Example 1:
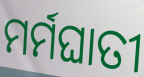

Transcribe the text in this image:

ମର୍ମଘାତୀ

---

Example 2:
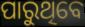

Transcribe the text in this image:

ପାରୁଥିବେ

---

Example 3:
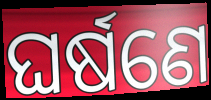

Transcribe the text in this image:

ଘର୍ଷଣେ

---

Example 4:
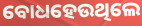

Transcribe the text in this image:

ବୋଧହେଉଥିଲେ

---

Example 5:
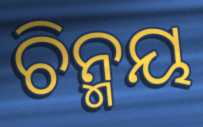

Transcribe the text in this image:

ଚିନ୍ମୟ